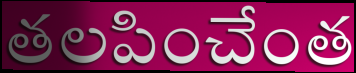
తలపించేంత